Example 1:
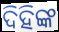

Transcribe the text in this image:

ଦିହିଙ୍କ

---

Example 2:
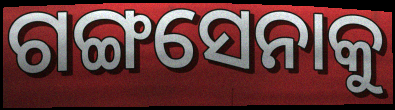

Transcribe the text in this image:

ଗଙ୍ଗସେନାକୁ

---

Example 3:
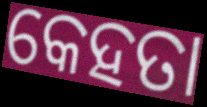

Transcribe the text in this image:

କେହତା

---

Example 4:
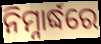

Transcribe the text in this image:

ନିମ୍ନାର୍ଦ୍ଧରେ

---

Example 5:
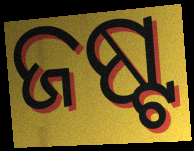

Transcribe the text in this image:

ଜଷ୍ଟ